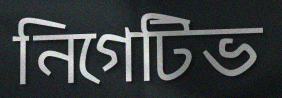
নিগেটিভ